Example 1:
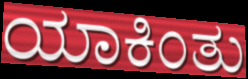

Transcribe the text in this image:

ಯಾಕಿಂತು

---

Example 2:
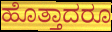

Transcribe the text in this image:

ಹೊತ್ತಾದರೂ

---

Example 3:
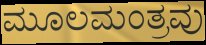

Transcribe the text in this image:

ಮೂಲಮಂತ್ರವು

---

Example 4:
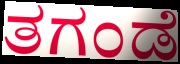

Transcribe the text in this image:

ತಗಂಡೆ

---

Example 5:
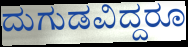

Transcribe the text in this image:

ದುಗುಡವಿದ್ದರೂ